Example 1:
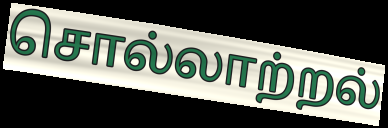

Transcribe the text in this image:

சொல்லாற்றல்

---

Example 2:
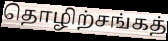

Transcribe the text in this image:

தொழிற்சங்கத்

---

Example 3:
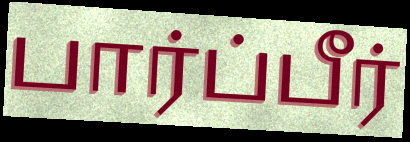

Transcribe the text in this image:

பார்ப்பீர்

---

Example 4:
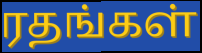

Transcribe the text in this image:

ரதங்கள்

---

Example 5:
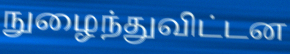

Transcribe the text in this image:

நுழைந்துவிட்டன